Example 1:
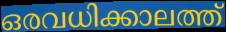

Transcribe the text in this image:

ഒരവധിക്കാലത്ത്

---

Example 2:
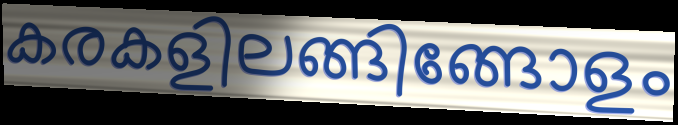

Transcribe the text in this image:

കരകളിലങ്ങിങ്ങോളം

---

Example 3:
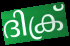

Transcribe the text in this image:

ദിക്ര്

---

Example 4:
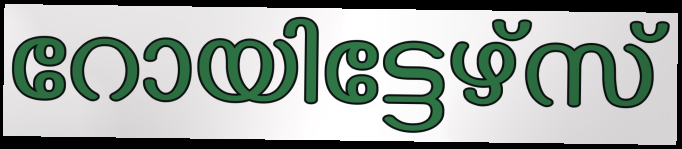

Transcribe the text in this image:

റോയിട്ടേഴ്സ്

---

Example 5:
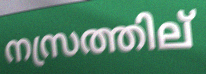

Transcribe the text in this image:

നസ്രത്തില്